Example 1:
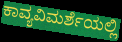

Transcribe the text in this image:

ಕಾವ್ಯವಿಮರ್ಶೆಯಲ್ಲಿ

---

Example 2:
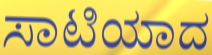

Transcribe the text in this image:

ಸಾಟಿಯಾದ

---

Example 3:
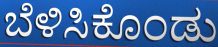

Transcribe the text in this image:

ಬೆಳಿಸಿಕೊಂಡು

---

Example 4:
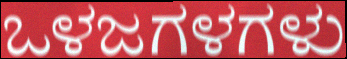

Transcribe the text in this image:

ಒಳಜಗಳಗಳು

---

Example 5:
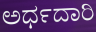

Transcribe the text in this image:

ಅರ್ಧದಾರಿ